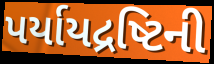
પર્યાયદ્રષ્ટિની